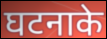
घटनाके